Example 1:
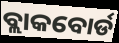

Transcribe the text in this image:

ବ୍ଲାକବୋର୍ଡ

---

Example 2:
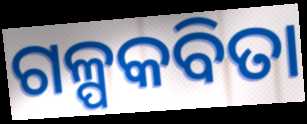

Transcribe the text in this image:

ଗଳ୍ପକବିତା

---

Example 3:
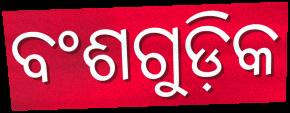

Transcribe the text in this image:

ବଂଶଗୁଡ଼ିକ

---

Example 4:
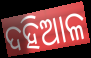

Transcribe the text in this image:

ଦହିଆଳ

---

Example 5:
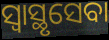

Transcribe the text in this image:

ସ୍ୱାସ୍ଥୃସେବା